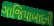
ગાજિયાબાદની